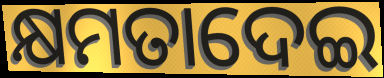
କ୍ଷମତାଦେଇ